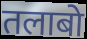
तलाबो